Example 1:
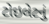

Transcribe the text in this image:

ટોઇલેટનું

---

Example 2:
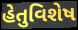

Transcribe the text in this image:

હેતુવિશેષ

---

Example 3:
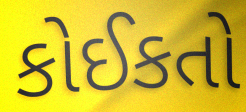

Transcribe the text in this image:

કોઈકતો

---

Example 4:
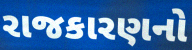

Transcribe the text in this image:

રાજકારણનો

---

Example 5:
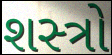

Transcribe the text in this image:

શસ્‍ત્રો